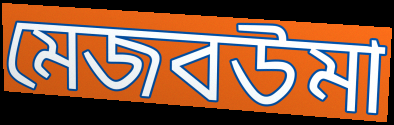
মেজবউমা